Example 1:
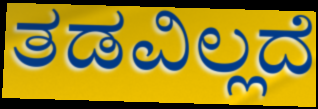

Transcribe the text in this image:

ತಡವಿಲ್ಲದೆ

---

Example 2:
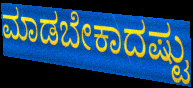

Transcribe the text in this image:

ಮಾಡಬೇಕಾದಷ್ಟು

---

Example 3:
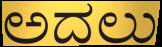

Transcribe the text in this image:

ಅದಲು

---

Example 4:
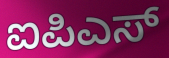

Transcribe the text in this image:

ಐಪಿಎಸ್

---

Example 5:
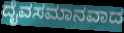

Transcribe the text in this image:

ದೈವಸಮಾನವಾದ